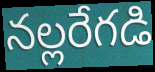
నల్లరేగడి